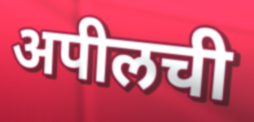
अपीलची